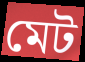
মেট